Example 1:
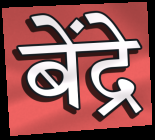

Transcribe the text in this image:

बेंद्रे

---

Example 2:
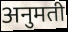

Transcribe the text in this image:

अनुमती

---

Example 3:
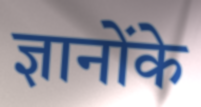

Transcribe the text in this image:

ज्ञानोंके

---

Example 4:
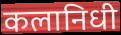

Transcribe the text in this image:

कलानिधी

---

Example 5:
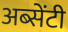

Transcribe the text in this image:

अब्सेंटी